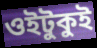
ওইটুকুই